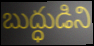
బుద్ధుడిని